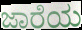
ಜಾರೆಯ